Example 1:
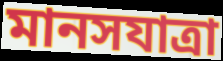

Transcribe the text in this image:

মানসযাত্রা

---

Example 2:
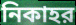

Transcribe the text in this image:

নিকাহর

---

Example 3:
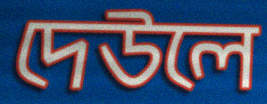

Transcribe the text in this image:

দেউলে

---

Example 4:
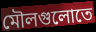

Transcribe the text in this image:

মৌলগুলোতে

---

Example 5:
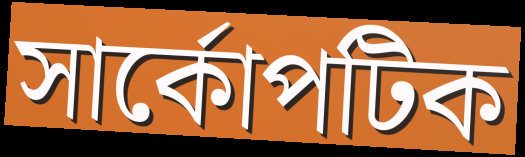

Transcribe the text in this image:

সার্কোপটিক